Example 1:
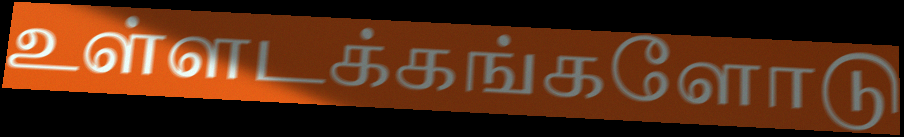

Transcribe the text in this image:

உள்ளடக்கங்களோடு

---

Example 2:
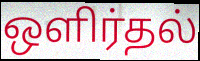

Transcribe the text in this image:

ஒளிர்தல்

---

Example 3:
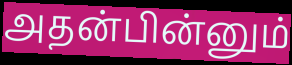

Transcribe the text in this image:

அதன்பின்னும்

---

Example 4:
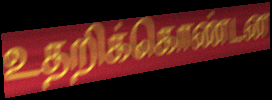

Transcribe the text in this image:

உதறிக்கொண்டன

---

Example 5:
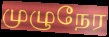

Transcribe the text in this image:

முழுநேர